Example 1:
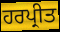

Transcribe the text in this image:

ਹਰਪ੍ਰੀਤ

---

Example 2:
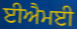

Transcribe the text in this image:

ਈਐਮਈ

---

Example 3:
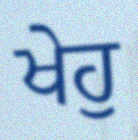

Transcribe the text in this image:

ਖੇਹੁ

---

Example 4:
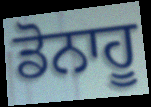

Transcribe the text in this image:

ਡੋਨਾਹੂ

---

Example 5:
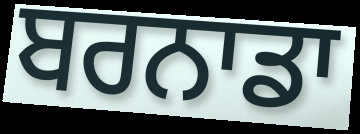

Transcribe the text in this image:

ਬਰਨਾਡਾ